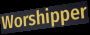
Worshipper